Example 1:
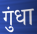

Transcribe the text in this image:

गुंधा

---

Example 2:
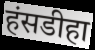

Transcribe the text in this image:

हंसडीहा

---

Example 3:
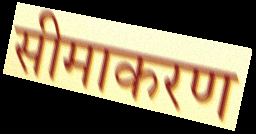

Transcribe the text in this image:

सीमाकरण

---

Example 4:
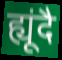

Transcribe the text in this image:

ह्यूंदै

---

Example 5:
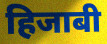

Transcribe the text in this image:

हिजाबी